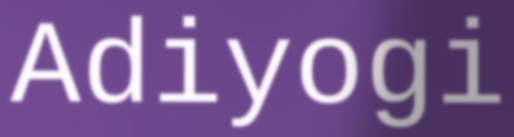
Adiyogi